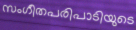
സംഗീതപരിപാടിയുടെ